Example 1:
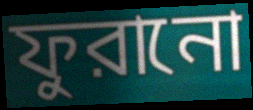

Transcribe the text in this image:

ফুরানো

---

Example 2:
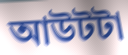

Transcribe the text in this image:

আউটটা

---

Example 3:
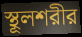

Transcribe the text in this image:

স্থূলশরীর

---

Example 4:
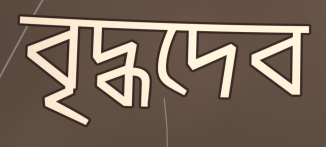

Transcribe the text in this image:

বৃদ্ধদেব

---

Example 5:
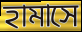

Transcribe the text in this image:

হামাসে